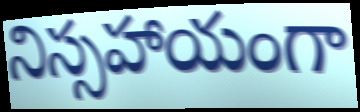
నిస్సహాయంగా